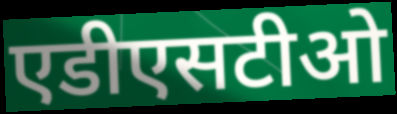
एडीएसटीओ